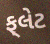
ફ્‌લેટ